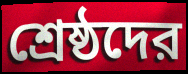
শ্রেষ্ঠদের